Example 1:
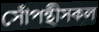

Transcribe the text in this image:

সোঁপন্থীসকল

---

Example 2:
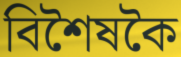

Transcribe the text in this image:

বিশৈষকৈ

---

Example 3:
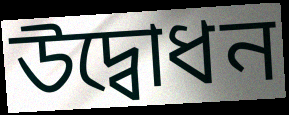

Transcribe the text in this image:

উদ্বোধন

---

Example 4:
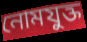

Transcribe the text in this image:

নোমযুক্ত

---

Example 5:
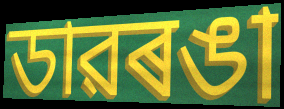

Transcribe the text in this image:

ডাৱৰঙা